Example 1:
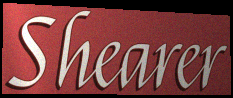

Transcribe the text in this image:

Shearer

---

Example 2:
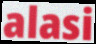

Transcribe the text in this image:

alasi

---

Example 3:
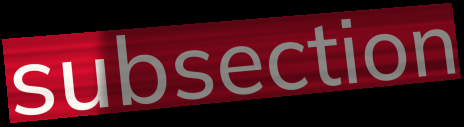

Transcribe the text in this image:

subsection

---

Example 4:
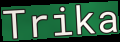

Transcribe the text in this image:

Trika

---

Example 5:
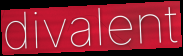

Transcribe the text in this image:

divalent